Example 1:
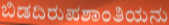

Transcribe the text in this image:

ಬಿಡದಿರುಪಶಾಂತಿಯನು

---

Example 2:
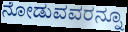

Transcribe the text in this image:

ನೋಡುವವರನ್ನೂ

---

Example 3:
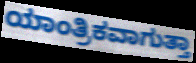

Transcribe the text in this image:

ಯಾಂತ್ರಿಕವಾಗುತ್ತಾ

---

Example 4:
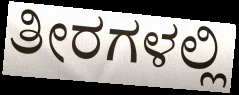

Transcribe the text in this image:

ತೀರಗಳಲ್ಲಿ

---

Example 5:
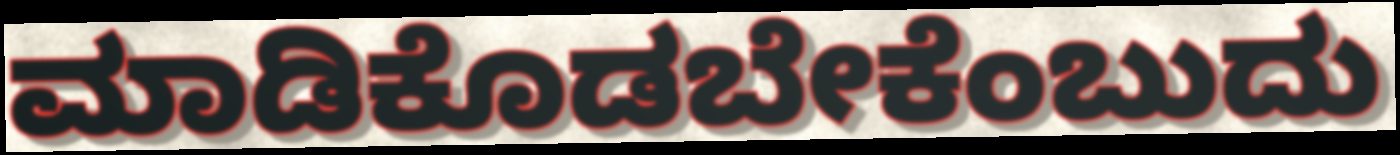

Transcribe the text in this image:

ಮಾಡಿಕೊಡಬೇಕೆಂಬುದು